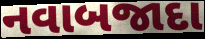
નવાબજાદા